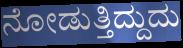
ನೋಡುತ್ತಿದ್ದುದು